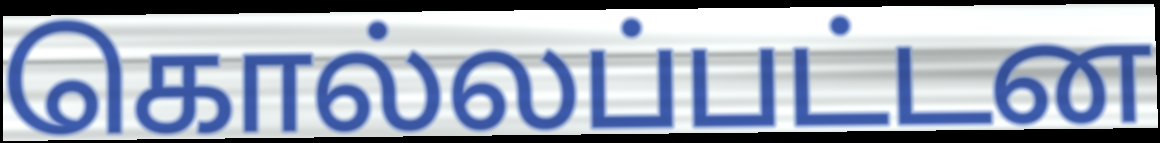
கொல்லப்பட்டன